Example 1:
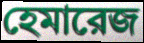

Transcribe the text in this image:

হেমারেজ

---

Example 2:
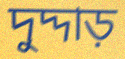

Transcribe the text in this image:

দুদ্দাড়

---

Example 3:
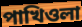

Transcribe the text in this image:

পাখিওলা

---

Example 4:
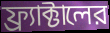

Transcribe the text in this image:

ফ্র্যাক্টালের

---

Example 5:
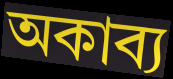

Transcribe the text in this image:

অকাব্য